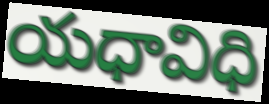
యధావిధి